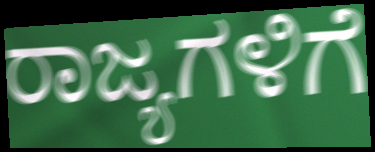
ರಾಜ್ಯಗಳಿಗೆ